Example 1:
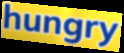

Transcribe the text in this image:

hungry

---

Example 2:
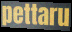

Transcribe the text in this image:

pettaru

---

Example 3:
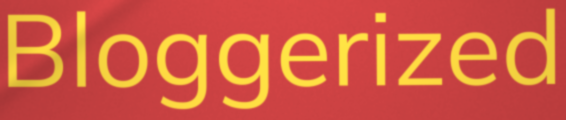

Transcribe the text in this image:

Bloggerized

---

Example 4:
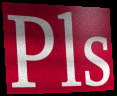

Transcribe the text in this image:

Pls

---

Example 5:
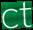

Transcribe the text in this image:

ct